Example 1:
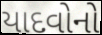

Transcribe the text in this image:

યાદવોનો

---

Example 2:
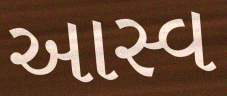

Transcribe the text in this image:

આસ્વ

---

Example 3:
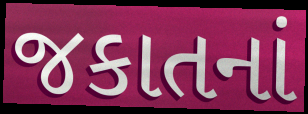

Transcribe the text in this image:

જકાતનાં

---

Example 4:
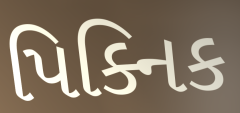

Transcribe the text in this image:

પિક્નિક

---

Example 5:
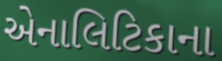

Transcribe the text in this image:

એનાલિટિકાના